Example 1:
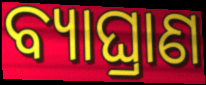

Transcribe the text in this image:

ବ୍ୟାଘ୍ରାଣ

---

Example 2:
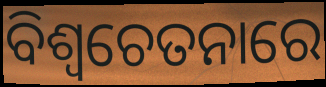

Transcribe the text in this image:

ବିଶ୍ୱଚେତନାରେ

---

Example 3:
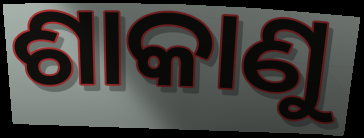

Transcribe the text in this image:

ଶାକାଣୁ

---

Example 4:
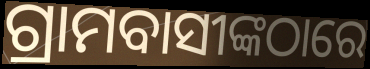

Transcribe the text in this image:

ଗ୍ରାମବାସୀଙ୍କଠାରେ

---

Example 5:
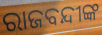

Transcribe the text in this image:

ରାଜବନ୍ଦୀଙ୍କ